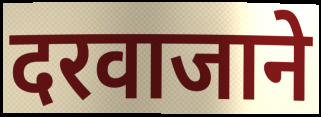
दरवाजाने